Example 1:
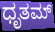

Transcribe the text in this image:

ಧೃತಮ್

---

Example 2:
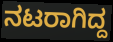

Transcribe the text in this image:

ನಟರಾಗಿದ್ದ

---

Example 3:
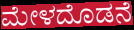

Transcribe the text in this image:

ಮೇಳದೊಡನೆ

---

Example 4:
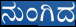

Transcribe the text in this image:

ನುಂಗಿದ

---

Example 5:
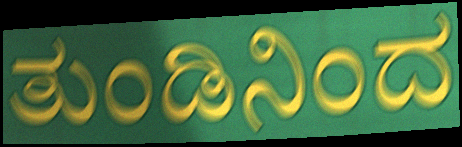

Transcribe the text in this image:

ತುಂಡಿನಿಂದ